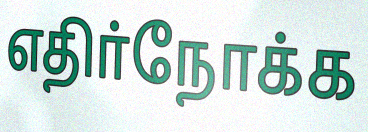
எதிர்நோக்க